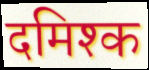
दमिश्क